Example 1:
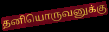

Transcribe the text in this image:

தனியொருவனுக்கு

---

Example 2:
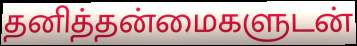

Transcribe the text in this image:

தனித்தன்மைகளுடன்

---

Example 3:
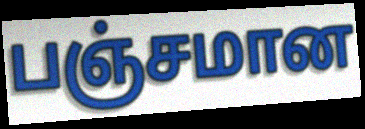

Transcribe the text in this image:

பஞ்சமான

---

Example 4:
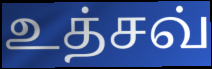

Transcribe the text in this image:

உத்சவ்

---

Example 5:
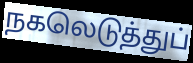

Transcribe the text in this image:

நகலெடுத்துப்